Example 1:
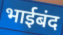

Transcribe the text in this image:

भाईबंद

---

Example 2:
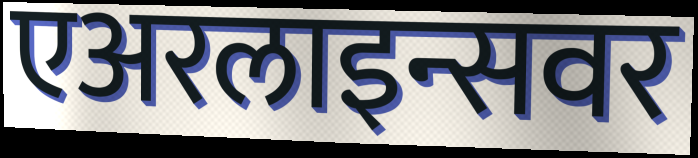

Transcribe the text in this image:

एअरलाइन्सवर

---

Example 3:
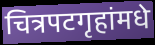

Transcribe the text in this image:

चित्रपटगृहांमधे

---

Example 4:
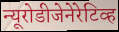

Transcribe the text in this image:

न्यूरोडीजेनेरेटिव्ह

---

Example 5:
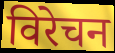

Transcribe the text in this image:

विरेचन